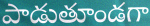
పాడుతూండగా